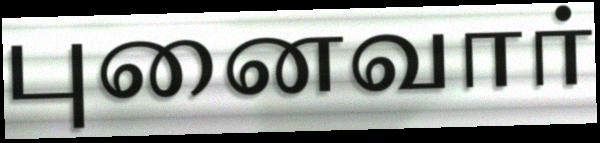
புனைவார்